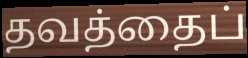
தவத்தைப்